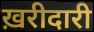
ख़रीदारी